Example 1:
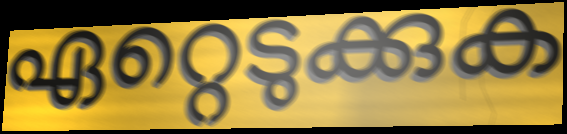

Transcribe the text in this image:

ഏറ്റെടുക്കുക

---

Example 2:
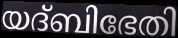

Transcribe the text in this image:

യദ്ബിഭേതി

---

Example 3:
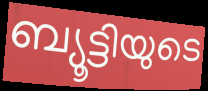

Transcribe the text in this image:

ബ്യൂട്ടിയുടെ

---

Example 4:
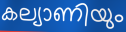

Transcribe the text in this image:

കല്യാണിയും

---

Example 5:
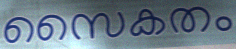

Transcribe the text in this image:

സൈകതം